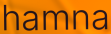
hamna